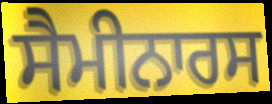
ਸੈਮੀਨਾਰਸ